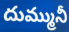
దుమ్మునీ